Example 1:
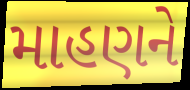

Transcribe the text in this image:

માહણને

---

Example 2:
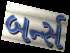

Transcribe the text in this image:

બર્ન્સ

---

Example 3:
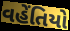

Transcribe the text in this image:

વહેંતિયો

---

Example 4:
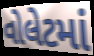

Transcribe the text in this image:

વોલેટમાં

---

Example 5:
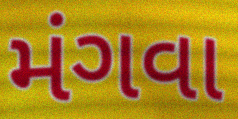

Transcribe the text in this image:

મંગવા